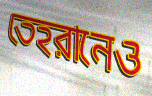
তেহরানেও